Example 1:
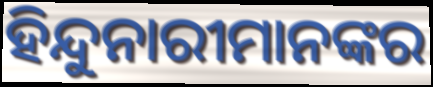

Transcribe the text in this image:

ହିନ୍ଦୁନାରୀମାନଙ୍କର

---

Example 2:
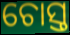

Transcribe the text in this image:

ଚୋସ୍ତ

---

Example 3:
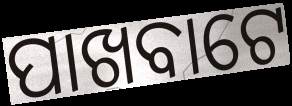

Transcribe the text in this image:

ପାଖବାଟେ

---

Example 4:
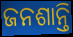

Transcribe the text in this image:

ଜନଶାନ୍ତି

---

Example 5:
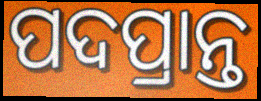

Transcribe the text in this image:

ପଦପ୍ରାନ୍ତ